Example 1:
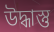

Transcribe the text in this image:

উদ্ধাস্তু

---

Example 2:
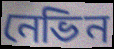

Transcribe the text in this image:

নেভিন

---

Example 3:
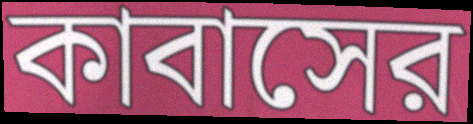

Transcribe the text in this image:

কাবাসের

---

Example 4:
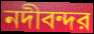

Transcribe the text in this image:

নদীবন্দর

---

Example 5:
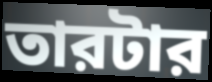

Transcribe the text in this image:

তারটার